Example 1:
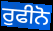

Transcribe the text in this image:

ਰੁਫੀਨੋ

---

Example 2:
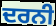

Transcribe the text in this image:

ਦਰਨੀ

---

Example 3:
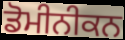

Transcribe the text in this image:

ਡੋਮੀਨੀਕਨ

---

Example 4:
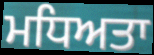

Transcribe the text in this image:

ਮਧਿਅਤਾ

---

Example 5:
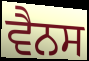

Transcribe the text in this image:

ਵੈਨਸ